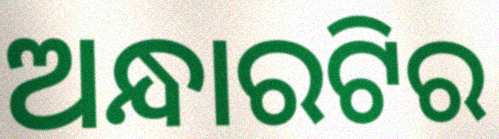
ଅନ୍ଧାରଟିର